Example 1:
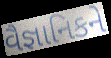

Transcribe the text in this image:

વૈજ્ઞાનિકને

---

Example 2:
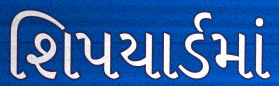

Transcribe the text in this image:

શિપયાર્ડમાં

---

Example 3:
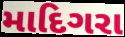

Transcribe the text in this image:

માદિગરા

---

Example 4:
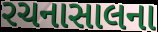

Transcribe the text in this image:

રચનાસાલના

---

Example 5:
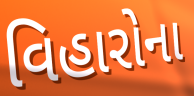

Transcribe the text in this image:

વિહારોના